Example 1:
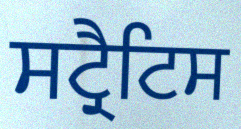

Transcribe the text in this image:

ਸਟ੍ਰੈਟਿਸ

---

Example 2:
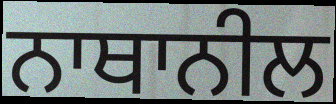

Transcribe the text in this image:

ਨਾਥਾਨੀਲ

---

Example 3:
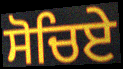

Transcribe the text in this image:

ਸੋਚਿਏ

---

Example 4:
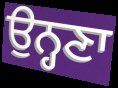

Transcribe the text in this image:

ਉਨ੍ਹਣਾ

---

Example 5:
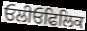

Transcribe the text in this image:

ਓਲੀਓਫਿਲਿਕ